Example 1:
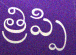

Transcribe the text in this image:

త్రిప్పి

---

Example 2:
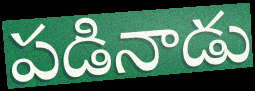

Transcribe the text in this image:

పడినాడు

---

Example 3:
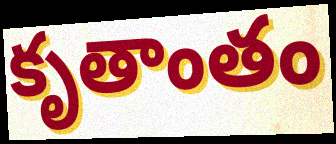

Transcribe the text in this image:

కృతాంతం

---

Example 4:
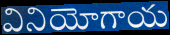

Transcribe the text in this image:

వినియోగాయ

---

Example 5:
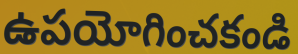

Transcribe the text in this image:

ఉపయోగించకండి